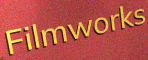
Filmworks